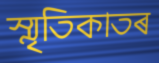
স্মৃতিকাতৰ